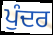
ਪੁੰਦਰ